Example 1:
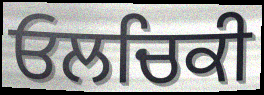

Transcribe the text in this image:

ਓਲਚਿਕੀ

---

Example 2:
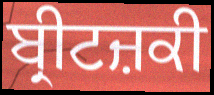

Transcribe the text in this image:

ਬ੍ਰੀਟਜ਼ਕੀ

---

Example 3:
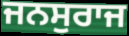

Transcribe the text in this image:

ਜਨਸੁਰਾਜ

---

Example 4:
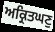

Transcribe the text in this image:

ਅਕ੍ਰਿਤਘਣੁ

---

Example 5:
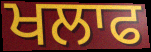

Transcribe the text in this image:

ਖਲਾਫ